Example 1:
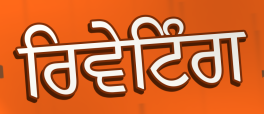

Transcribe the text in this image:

ਰਿਵੇਟਿੰਗ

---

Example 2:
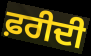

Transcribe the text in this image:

ਫ਼ਰੀਦੀ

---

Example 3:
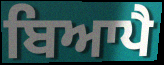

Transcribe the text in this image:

ਬਿਆਪੈ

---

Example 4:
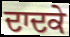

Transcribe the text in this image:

ਦਾਦਕੇ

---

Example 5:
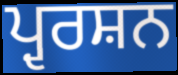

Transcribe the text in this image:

ਪ੍ਦਰਸ਼ਨ